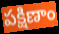
పక్షిణాం